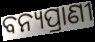
ବନ୍ୟପ୍ରାଣୀ